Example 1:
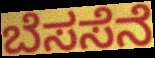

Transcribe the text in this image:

ಬೆಸಸೆನೆ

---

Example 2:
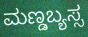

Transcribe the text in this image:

ಮಣ್ಡಬ್ಯಸ್ಸ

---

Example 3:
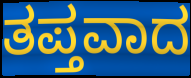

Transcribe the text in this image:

ತಪ್ತವಾದ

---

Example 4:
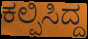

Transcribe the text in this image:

ಕಲ್ಪಿಸಿದ್ದ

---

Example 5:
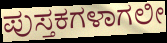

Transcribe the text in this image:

ಪುಸ್ತಕಗಳಾಗಲೀ